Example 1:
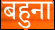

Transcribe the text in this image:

बहुना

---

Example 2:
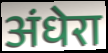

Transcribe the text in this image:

अंधेरा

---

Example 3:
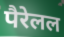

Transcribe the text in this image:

पैरेलल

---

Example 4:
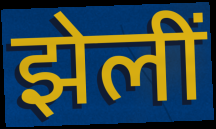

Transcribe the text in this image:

झेलीं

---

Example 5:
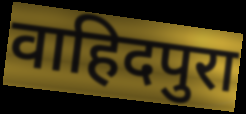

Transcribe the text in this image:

वाहिदपुरा